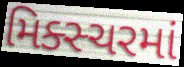
મિક્સ્ચરમાં